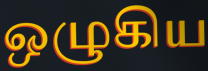
ஒழுகிய